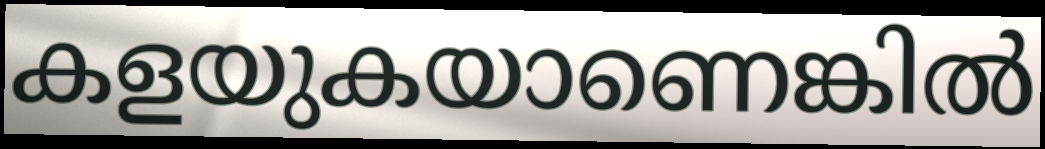
കളയുകയാണെങ്കിൽ